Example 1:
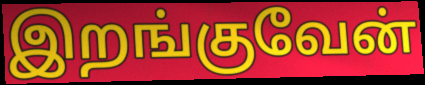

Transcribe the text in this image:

இறங்குவேன்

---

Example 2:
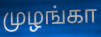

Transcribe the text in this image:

முழங்கா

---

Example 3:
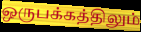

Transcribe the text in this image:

ஒருபக்கத்திலும்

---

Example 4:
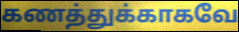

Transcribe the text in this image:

கணத்துக்காகவே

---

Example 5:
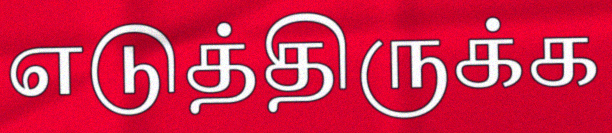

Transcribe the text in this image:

எடுத்திருக்க